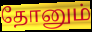
தோனும்